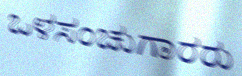
ಒಳಸಂಚುಗಾರರು